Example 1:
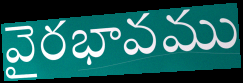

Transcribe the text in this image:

వైరభావము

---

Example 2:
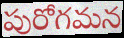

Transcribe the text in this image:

పురోగమన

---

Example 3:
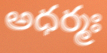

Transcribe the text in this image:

అధర్మః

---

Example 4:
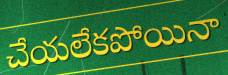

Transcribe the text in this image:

చేయలేకపోయినా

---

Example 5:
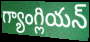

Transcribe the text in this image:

గ్యాంగ్లియన్